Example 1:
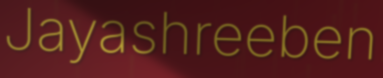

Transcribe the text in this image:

Jayashreeben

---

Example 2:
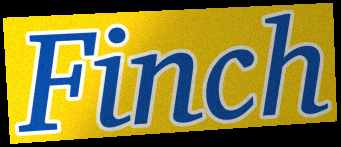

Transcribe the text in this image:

Finch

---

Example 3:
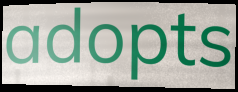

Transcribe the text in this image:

adopts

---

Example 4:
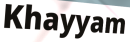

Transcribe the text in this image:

Khayyam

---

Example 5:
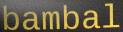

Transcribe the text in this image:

bambal